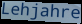
Lehjahre